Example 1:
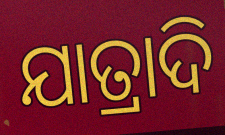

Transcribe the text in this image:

ଯାତ୍ରାଦି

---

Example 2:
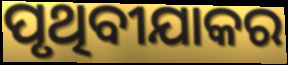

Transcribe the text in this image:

ପୃଥିବୀଯାକର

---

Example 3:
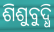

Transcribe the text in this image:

ଶିଶୁବୁଦ୍ଧି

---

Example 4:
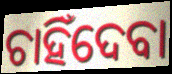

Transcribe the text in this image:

ଚାହିଁଦେବା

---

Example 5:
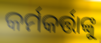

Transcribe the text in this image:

କର୍ମକର୍ତ୍ତାଙ୍କୁ